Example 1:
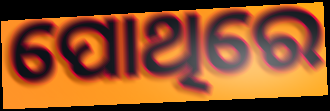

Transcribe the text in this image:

ପୋଥିରେ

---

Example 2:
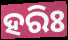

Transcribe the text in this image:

ହରିଃ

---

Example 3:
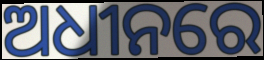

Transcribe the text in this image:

ଅଧୀନରେ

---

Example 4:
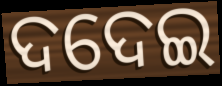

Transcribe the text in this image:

ଦଦେଇ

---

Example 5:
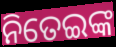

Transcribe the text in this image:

ନିତେଇଙ୍କ